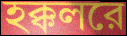
হক্কলরে